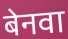
बेनवा